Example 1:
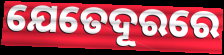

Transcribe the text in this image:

ଯେତେଦୂରରେ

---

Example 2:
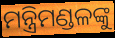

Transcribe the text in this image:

ମନ୍ତ୍ରିମଣ୍ଡଳଙ୍କୁ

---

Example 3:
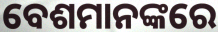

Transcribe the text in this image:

ବେଶମାନଙ୍କରେ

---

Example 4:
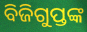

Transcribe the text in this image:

ବିଜିଗୁପ୍ତଙ୍କ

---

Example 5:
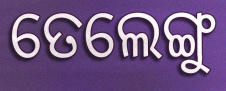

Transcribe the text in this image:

ତେଲେଙ୍ଗୁ